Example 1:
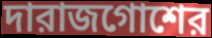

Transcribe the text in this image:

দারাজগোশের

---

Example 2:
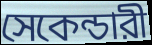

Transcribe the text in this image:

সেকেন্ডারী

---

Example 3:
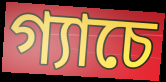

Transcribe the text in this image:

গ্যাচে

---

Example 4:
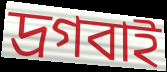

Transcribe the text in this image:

দ্রগবাই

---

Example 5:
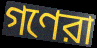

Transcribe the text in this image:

গণেরা